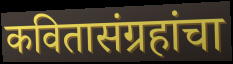
कवितासंग्रहांचा